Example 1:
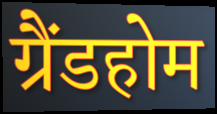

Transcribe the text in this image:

ग्रैंडहोम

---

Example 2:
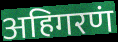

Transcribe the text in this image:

अहिगरणं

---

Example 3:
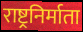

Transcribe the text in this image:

राष्ट्रनिर्माता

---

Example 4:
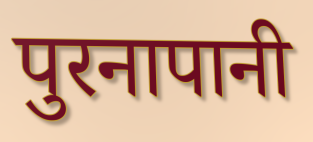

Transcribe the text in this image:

पुरनापानी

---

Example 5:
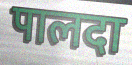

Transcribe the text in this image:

पालदा